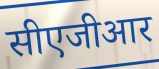
सीएजीआर